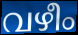
വഴീം